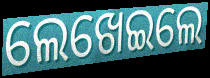
ଲେଖେଇଲେ